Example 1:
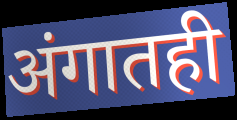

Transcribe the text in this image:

अंगातही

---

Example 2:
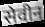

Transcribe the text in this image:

सेवीन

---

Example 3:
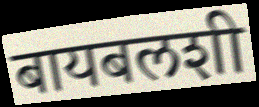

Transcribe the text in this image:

बायबलशी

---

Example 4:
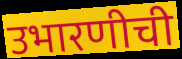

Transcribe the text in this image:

उभारणीची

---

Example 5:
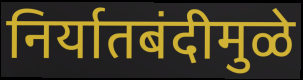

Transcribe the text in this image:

निर्यातबंदीमुळे